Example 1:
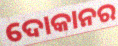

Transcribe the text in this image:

ଦୋକାନର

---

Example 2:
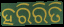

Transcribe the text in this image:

ହରିରିତି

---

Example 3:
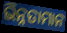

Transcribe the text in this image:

ଭିନ୍ନତାମାନ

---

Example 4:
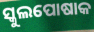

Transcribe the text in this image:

ସ୍କୁଲପୋଷାକ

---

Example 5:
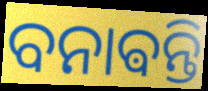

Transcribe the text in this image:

ବନାଵନ୍ତି